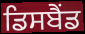
ਡਿਸਬੈਂਡ